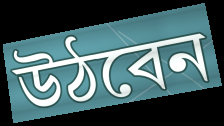
উঠবেন